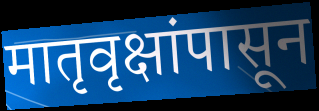
मातृवृक्षांपासून